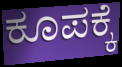
ಕೂಪಕ್ಕೆ